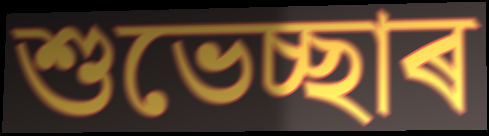
শুভেচ্ছাৰ